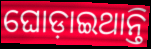
ଘୋଡ଼ାଇଥାନ୍ତି